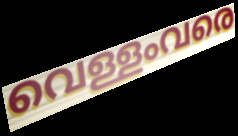
വെള്ളംവരെ